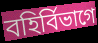
বহির্বিভাগে